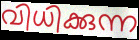
വിധിക്കുന്ന